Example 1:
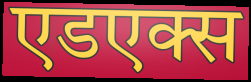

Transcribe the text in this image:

एडएक्स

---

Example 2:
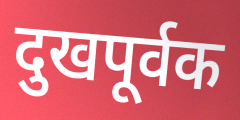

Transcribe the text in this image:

दुखपूर्वक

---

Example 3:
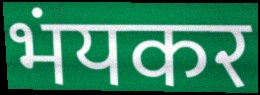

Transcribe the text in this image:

भंयकर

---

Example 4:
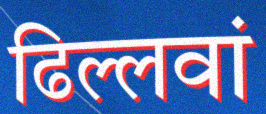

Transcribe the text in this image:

ढिल्लवां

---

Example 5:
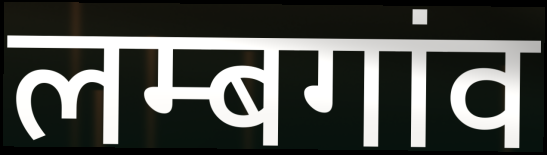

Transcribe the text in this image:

लम्बगांव